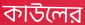
কাউলের